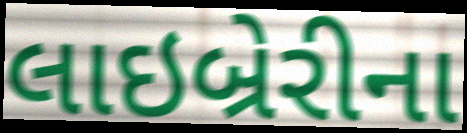
લાઇબ્રેરીના